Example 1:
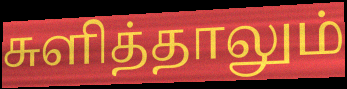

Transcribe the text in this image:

சுளித்தாலும்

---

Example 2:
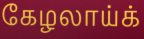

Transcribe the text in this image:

கேழலாய்க்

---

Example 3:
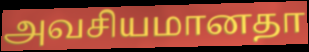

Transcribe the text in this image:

அவசியமானதா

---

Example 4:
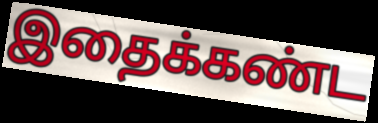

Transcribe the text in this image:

இதைக்கண்ட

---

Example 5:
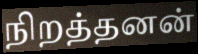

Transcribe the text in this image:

நிறத்தனன்